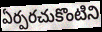
ఏర్పరచుకొంటిని